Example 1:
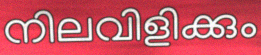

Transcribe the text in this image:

നിലവിളിക്കും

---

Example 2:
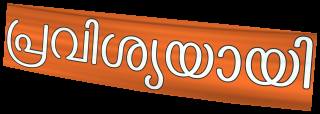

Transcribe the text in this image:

പ്രവിശ്യയായി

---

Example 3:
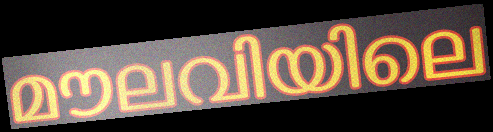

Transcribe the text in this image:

മൗലവിയിലെ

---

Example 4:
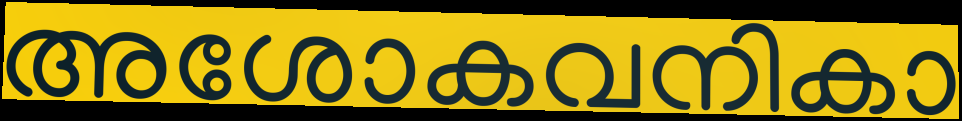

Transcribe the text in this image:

അശോകവനികാ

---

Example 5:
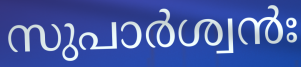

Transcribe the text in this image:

സുപാർശ്വൻഃ